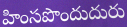
హింసపొందుదురు